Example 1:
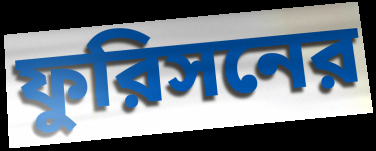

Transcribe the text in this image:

ফুরিসনের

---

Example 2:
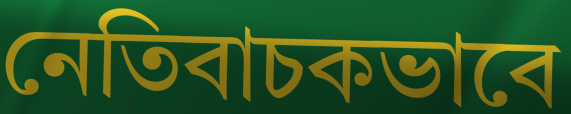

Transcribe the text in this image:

নেতিবাচকভাবে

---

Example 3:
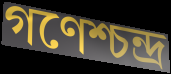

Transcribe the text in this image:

গণেশ্চন্দ্র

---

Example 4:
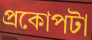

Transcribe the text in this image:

প্রকোপটা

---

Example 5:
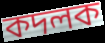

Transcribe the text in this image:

কদলক